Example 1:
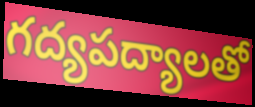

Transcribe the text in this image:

గద్యపద్యాలతో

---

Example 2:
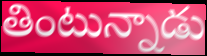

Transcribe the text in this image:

తింటున్నాడు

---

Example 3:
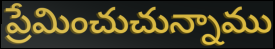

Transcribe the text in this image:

ప్రేమించుచున్నాము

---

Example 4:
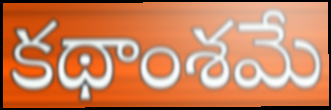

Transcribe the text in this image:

కథాంశమే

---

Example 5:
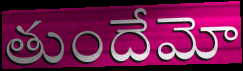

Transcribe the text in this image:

తుందేమో